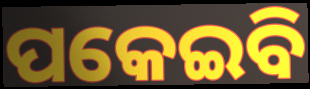
ପକେଇବି